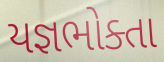
યજ્ઞભોક્તા